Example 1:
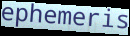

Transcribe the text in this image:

ephemeris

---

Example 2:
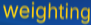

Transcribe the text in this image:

weighting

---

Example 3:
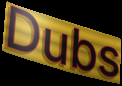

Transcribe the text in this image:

Dubs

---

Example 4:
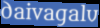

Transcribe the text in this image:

daivagalu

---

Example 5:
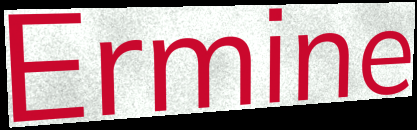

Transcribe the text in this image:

Ermine